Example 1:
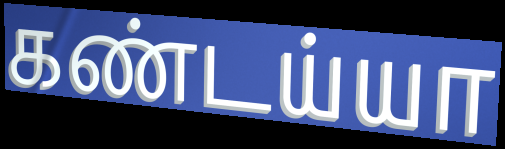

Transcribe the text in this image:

கண்டய்யா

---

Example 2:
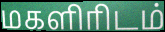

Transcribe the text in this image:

மகளிரிடம்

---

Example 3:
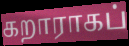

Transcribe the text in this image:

கறாராகப்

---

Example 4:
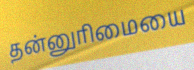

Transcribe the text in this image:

தன்னுரிமையை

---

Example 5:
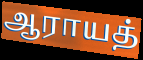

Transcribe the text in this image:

ஆராயத்